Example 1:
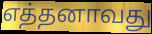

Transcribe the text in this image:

எத்தனாவது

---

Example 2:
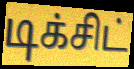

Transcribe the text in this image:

டிக்சிட்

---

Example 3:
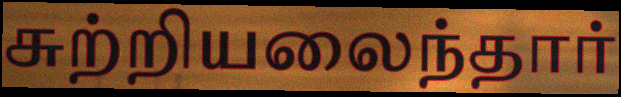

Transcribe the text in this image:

சுற்றியலைந்தார்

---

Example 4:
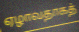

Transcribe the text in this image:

ஏழாவதாகத்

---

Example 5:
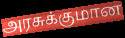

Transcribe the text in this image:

அரசுக்குமான